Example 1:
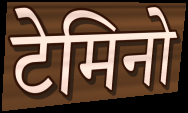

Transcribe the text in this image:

टेमिनो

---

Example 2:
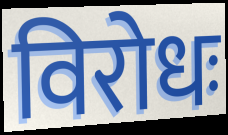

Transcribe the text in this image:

विरोधः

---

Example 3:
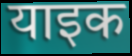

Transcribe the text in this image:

याइक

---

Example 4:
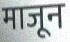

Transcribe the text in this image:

माजून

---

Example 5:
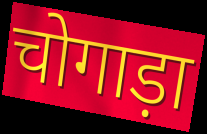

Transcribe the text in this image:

चोगाड़ा